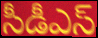
సీడీఎస్